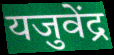
यजुवेंद्र